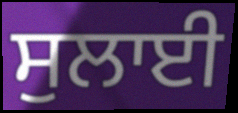
ਸੁਲਾਈ